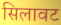
सिलावट